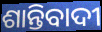
ଶାନ୍ତିବାଦୀ